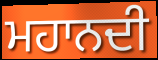
ਮਹਾਨਦੀ